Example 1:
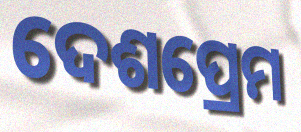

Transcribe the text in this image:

ଦେଶପ୍ରେମ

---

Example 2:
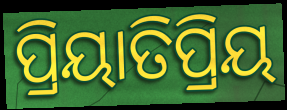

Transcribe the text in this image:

ପ୍ରିୟାତିପ୍ରିୟ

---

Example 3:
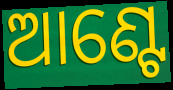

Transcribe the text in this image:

ଆଣ୍ଟେ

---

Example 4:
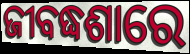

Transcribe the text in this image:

ଜୀବଦ୍ଧଶାରେ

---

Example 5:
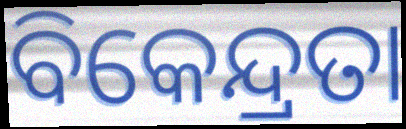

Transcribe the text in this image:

ବିକେନ୍ଦ୍ରତା